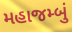
મહાજમ્બું